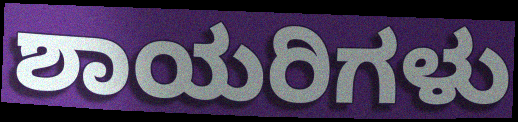
ಶಾಯರಿಗಳು